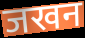
जखन